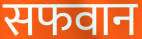
सफवान